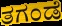
ತಗಂಡೆ